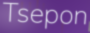
Tsepon